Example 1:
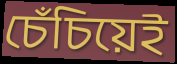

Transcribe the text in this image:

চেঁচিয়েই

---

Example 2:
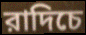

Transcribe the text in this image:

রাদিচে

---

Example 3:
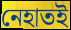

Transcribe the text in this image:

নেহাতই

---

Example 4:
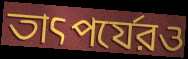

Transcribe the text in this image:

তাৎপর্যেরও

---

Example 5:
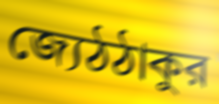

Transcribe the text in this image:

জ্যেঠঠাকুর